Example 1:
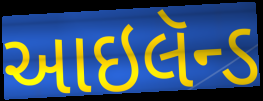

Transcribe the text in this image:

આઇલૅન્ડ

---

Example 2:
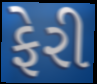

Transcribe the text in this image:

ફેરી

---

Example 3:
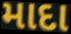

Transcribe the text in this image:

માદા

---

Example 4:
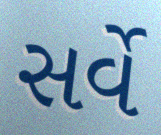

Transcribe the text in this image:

સર્વે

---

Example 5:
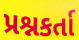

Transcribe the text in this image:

પ્રશ્નકર્તા